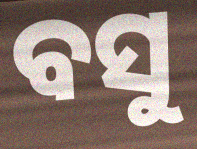
ବସୁ